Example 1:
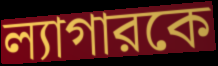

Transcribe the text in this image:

ল্যাগারকে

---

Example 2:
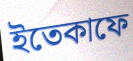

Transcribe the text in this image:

ইতেকাফে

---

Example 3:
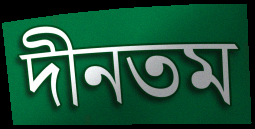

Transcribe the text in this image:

দীনতম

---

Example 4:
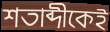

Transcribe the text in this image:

শতাব্দীকেই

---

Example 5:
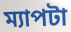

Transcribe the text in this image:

ম্যাপটা